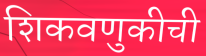
शिकवणुकीची